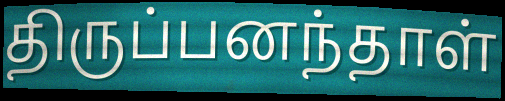
திருப்பனந்தாள்